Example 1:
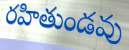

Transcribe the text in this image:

రహితుండవు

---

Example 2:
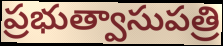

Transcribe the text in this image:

ప్రభుత్వాసుపత్రి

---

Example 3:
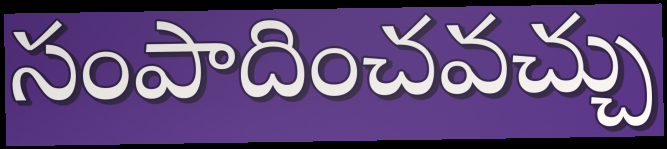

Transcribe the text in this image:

సంపాదించవచ్చు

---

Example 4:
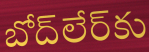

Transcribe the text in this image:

బోద్‌లేర్‌కు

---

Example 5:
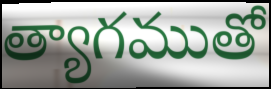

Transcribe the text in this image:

త్యాగముతో